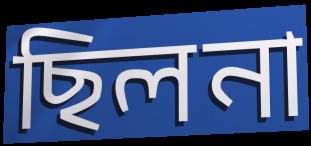
ছিলনা